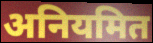
अनियमित